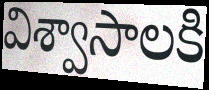
విశ్వాసాలకి